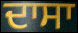
ਦਾਸਾ